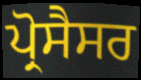
ਪ੍ਰੋਸੈਸਰ